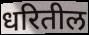
धरितील